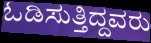
ಓಡಿಸುತ್ತಿದ್ದವರು